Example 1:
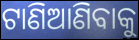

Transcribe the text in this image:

ଟାଣିଆଣିବାକୁ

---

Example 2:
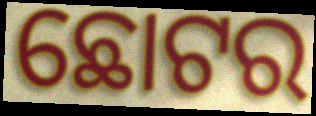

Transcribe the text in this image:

ଛୋଟର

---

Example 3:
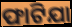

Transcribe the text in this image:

ଫାଟିଯା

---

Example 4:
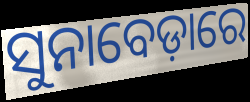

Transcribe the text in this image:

ସୁନାବେଡ଼ାରେ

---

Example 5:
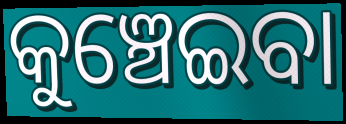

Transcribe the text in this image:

କୁଞ୍ଚେଇବା